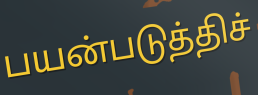
பயன்படுத்திச்